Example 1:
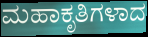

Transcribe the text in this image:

ಮಹಾಕೃತಿಗಳಾದ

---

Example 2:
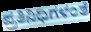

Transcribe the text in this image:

ಪ್ರತಿನಿಧಿಗಳಂತೆ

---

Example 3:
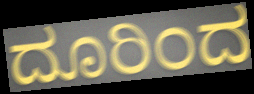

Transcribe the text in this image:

ದೂರಿಂದ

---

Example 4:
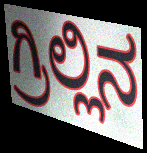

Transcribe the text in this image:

ಗ್ರಿಲ್ಲಿನ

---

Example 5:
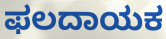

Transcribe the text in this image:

ಫಲದಾಯಕ